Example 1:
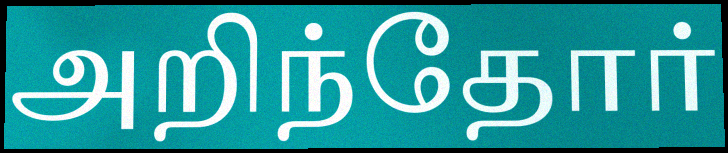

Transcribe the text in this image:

அறிந்தோர்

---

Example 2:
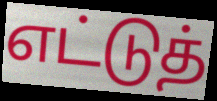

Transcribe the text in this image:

எட்டுத்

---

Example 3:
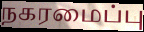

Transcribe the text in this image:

நகரமைப்பு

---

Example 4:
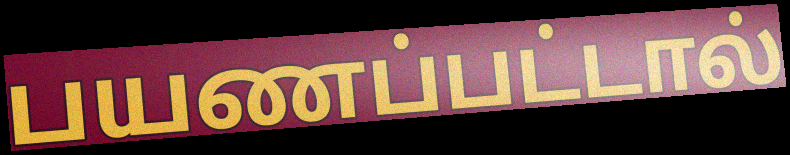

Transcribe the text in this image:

பயணப்பட்டால்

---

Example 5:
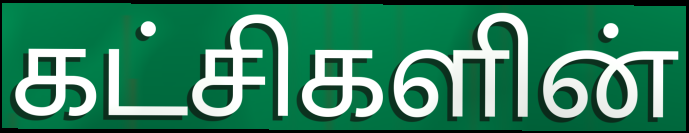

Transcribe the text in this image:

கட்சிகளின்